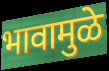
भावामुळे